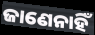
ଜାଣେନାହିଁ